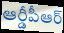
ఆర్డీపీఆర్